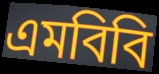
এমবিবি